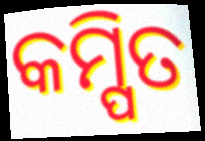
କମ୍ପିତ